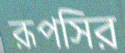
রূপসির